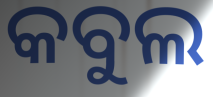
କବୁଲ